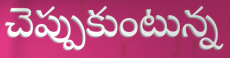
చెప్పుకుంటున్న